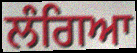
ਲੰਗਿਆ